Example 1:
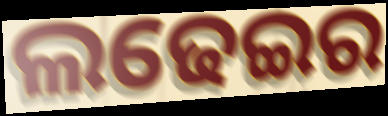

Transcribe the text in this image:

ଲଢେଇର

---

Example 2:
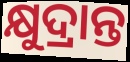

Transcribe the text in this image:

କ୍ଷୁଦ୍ରାନ୍ତ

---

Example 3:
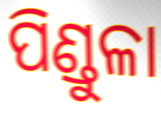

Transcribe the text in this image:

ପିଣ୍ଡୁଳା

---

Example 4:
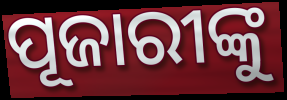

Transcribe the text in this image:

ପୂଜାରୀଙ୍କୁ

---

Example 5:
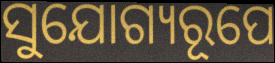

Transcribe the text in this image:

ସୁଯୋଗ୍ୟରୂପେ